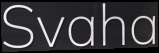
Svaha